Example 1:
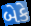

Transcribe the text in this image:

બેકે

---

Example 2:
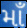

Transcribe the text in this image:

માઁ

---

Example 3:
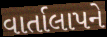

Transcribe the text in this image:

વાર્તાલાપને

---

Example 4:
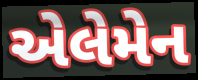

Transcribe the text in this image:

એલેમેન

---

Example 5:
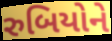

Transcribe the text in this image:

રુબિયોને